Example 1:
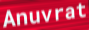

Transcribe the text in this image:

Anuvrat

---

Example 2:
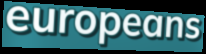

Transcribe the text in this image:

europeans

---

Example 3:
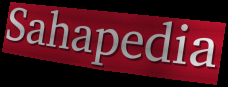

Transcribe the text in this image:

Sahapedia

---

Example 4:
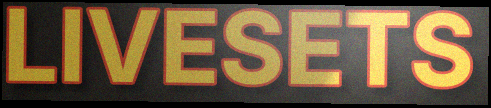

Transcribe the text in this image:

LIVESETS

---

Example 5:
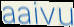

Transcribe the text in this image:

aaivu